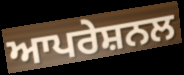
ਆਪਰੇਸ਼ਨਲ